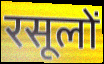
रसूलों